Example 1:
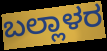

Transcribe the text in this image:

ಬಲ್ಲಾಳರ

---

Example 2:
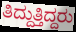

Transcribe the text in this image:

ತಿದ್ದುತ್ತಿದ್ದರು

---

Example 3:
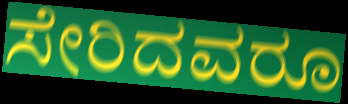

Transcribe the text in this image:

ಸೇರಿದವರೂ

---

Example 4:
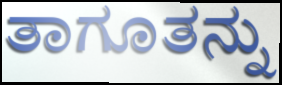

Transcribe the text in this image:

ತಾಗೂತನ್ನು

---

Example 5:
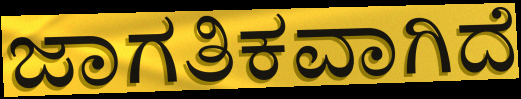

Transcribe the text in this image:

ಜಾಗತಿಕವಾಗಿದೆ